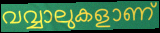
വവ്വാലുകളാണ്